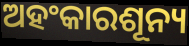
ଅହଂକାରଶୂନ୍ୟ